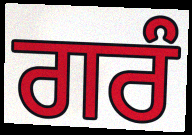
ਗਰੰ